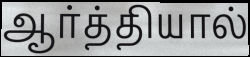
ஆர்த்தியால்